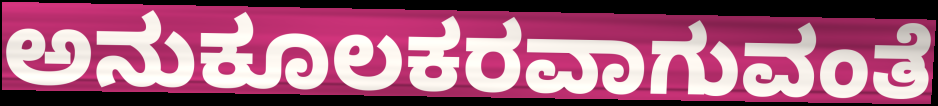
ಅನುಕೂಲಕರವಾಗುವಂತೆ